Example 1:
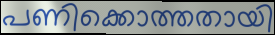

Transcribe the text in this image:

പണിക്കൊത്തതായി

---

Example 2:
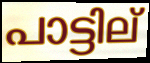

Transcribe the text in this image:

പാട്ടില്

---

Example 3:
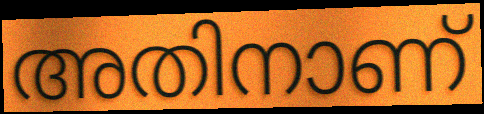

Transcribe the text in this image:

അതിനാണ്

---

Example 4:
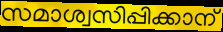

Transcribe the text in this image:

സമാശ്വസിപ്പിക്കാന്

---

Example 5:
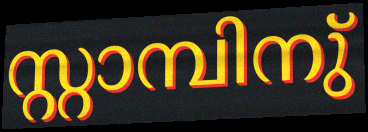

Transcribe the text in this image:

സ്റ്റാമ്പിനു്